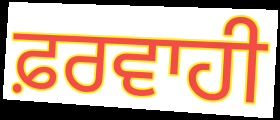
ਫ਼ਰਵਾਹੀ